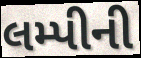
લમ્પીની